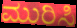
ಮುರಿಸಿ